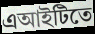
এআইটিতে